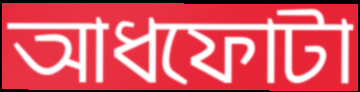
আধফোটা